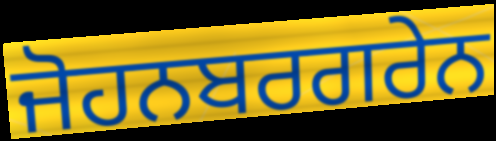
ਜੋਹਨਬਰਗਰੇਨ